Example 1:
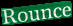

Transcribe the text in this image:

Rounce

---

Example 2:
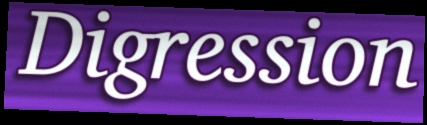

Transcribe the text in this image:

Digression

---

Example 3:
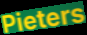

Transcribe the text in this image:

Pieters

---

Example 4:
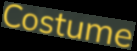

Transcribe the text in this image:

Costume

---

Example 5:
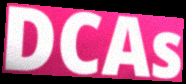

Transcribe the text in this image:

DCAs